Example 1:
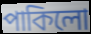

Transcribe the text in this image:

পাকিলো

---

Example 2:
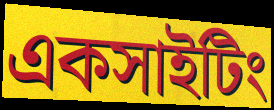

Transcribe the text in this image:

একসাইটিং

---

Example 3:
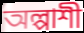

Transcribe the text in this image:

অল্পাশী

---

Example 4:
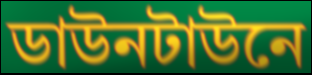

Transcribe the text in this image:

ডাউনটাউনে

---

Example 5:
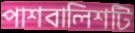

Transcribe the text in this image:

পাশবালিশটি